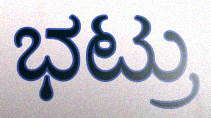
ಭಟ್ರು